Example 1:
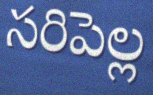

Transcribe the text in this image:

సరిపెల్ల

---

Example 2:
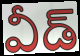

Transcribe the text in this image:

వీడ్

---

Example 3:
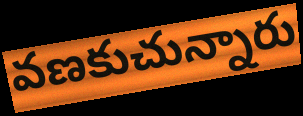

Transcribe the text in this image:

వణకుచున్నారు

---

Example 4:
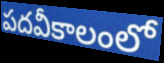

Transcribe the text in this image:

పదవీకాలంలో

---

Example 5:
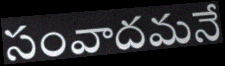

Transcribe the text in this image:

సంవాదమనే